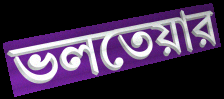
ভলতেয়ার